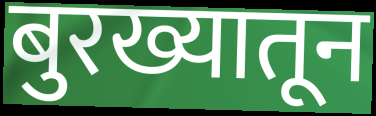
बुरख्यातून